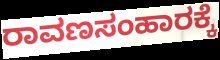
ರಾವಣಸಂಹಾರಕ್ಕೆ